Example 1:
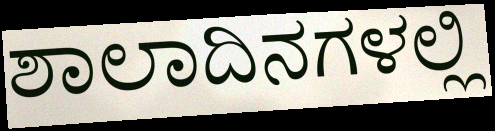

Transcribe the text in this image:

ಶಾಲಾದಿನಗಳಲ್ಲಿ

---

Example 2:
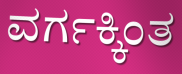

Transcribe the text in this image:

ವರ್ಗಕ್ಕಿಂತ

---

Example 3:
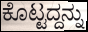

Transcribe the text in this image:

ಕೊಟ್ಟದ್ದನ್ನು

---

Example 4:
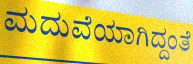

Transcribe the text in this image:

ಮದುವೆಯಾಗಿದ್ದಂತೆ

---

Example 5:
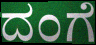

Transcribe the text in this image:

ದಂಗೆ